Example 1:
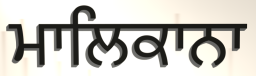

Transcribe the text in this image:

ਮਾਲਿਕਾਨਾ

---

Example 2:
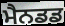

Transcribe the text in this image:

ਮੈਨਡਡ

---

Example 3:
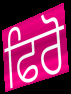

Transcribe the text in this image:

ਫਿਰੋ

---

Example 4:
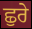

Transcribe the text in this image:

ਛੁਰੇ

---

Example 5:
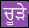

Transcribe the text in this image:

ਚੂੜੇ